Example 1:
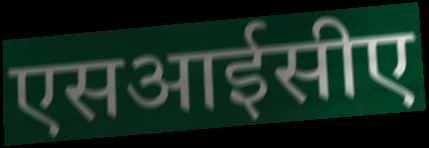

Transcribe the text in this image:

एसआईसीए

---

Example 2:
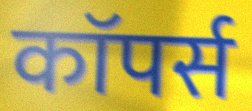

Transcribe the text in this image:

कॉपर्स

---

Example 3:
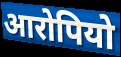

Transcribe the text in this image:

आरोपियो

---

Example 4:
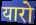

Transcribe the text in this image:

यारो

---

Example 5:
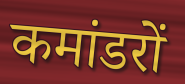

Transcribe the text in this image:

कमांडरों